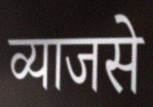
व्याजसे